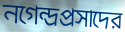
নগেন্দ্রপ্রসাদের